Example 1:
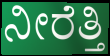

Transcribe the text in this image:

ನೀರೆತ್ತಿ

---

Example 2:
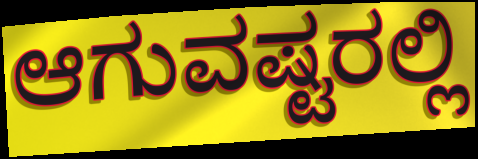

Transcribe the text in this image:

ಆಗುವಷ್ಟರಲ್ಲಿ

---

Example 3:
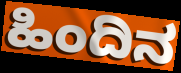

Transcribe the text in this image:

ಹಿಂದಿನ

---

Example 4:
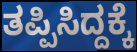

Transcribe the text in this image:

ತಪ್ಪಿಸಿದ್ದಕ್ಕೆ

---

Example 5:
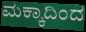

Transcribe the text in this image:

ಮಕ್ಕಾದಿಂದ